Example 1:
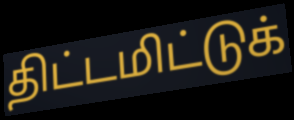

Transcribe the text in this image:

திட்டமிட்டுக்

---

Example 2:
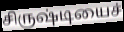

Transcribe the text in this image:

சிருஷ்டியைச்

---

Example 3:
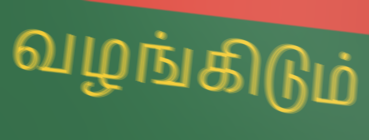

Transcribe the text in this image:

வழங்கிடும்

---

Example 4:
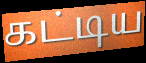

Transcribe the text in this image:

கட்டிய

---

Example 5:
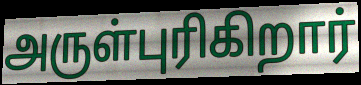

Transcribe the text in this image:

அருள்புரிகிறார்